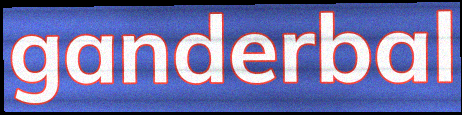
ganderbal